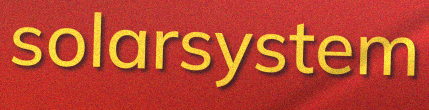
solarsystem